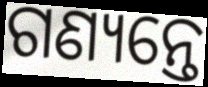
ଗଣ୍ୟନ୍ତେ